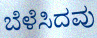
ಬೆಳೆಸಿದವು